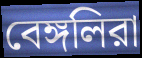
বেঙ্গলিরা